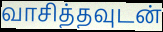
வாசித்தவுடன்